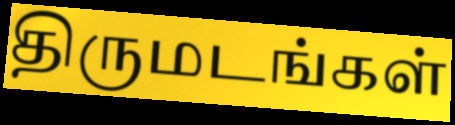
திருமடங்கள்